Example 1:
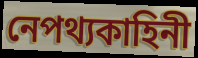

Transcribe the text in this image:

নেপথ্যকাহিনী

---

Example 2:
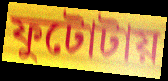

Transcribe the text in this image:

ফুটোটায়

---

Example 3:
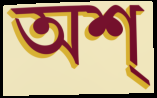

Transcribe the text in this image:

অশ্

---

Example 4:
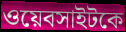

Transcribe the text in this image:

ওয়েবসাইটকে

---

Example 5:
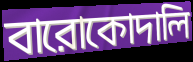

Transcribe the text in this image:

বারোকোদালি